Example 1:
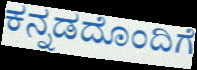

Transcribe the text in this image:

ಕನ್ನಡದೊಂದಿಗೆ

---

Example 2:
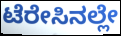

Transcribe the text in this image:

ಟೆರೇಸಿನಲ್ಲೇ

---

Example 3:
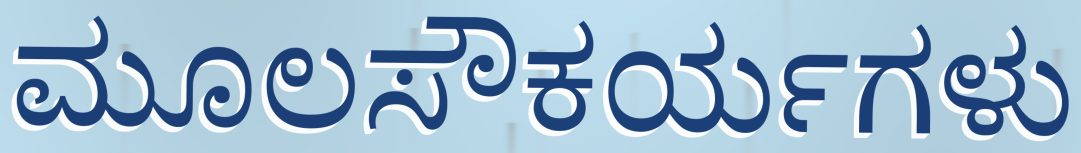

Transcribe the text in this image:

ಮೂಲಸೌಕರ್ಯಗಳು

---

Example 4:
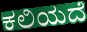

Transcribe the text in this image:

ಕಲಿಯದೆ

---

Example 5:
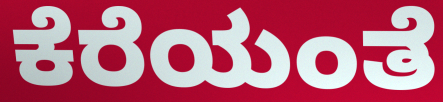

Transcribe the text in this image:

ಕೆರೆಯಂತೆ